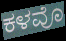
ಕಳವೊ